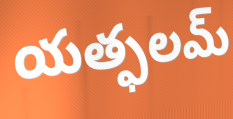
యత్ఫలమ్